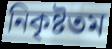
নিকৃষ্টতম